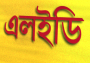
এলইডি